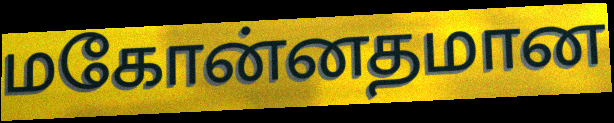
மகோன்னதமான